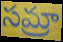
సమ్రా